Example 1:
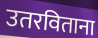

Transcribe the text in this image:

उतरविताना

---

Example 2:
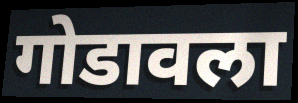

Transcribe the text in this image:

गोडावला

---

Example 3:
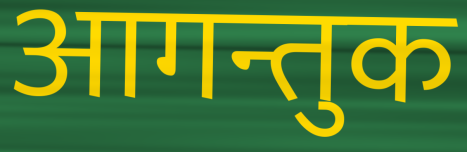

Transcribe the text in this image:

आगन्तुक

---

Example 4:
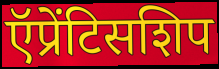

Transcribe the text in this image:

ऍप्रेंटिसशिप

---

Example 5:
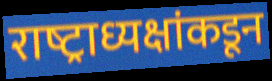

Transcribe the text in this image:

राष्ट्राध्यक्षांकडून